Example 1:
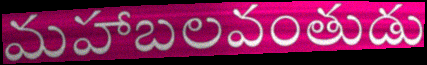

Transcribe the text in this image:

మహాబలవంతుడు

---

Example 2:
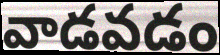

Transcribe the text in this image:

వాడవడం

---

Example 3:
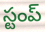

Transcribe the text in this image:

స్టంప్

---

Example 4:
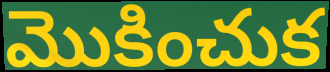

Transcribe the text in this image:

మొకించుక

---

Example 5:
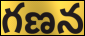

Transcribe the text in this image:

గణన